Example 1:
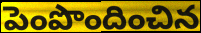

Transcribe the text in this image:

పెంపొందించిన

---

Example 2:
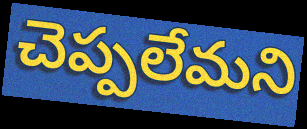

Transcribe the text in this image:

చెప్పలేమని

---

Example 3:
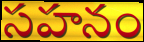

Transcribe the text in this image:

సహనం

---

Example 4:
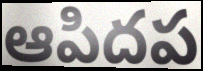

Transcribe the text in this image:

ఆపిదప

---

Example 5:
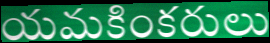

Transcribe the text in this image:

యమకింకరులు